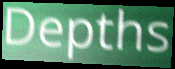
Depths